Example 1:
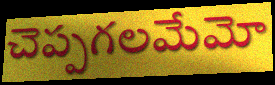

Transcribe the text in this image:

చెప్పగలమేమో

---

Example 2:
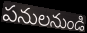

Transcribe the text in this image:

పనులనుండి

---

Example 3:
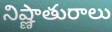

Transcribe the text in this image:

నిష్ణాతురాలు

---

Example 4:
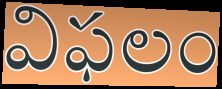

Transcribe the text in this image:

విఫలం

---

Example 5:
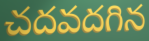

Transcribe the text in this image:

చదవదగిన